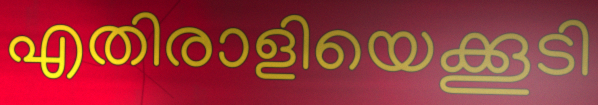
എതിരാളിയെക്കൂടി